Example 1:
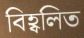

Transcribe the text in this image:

বিহ্বলিত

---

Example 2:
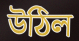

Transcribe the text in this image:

উঠিল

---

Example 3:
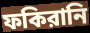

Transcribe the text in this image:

ফকিরানি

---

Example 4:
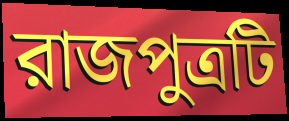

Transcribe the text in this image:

রাজপুত্রটি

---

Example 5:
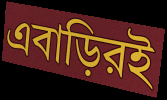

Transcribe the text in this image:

এবাড়িরই